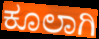
ಕೂಲಾಗಿ